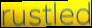
rustled